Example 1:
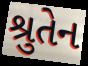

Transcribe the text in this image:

શ્રુતેન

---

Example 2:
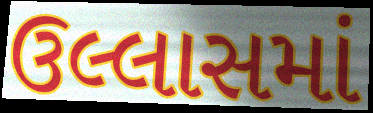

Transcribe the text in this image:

ઉલ્લાસમાં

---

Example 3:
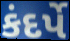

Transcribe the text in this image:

કંદર્પે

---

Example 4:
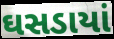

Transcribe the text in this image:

ઘસડાયાં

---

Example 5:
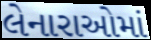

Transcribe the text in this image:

લેનારાઓમાં